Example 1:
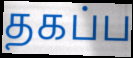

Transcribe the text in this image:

தகப்ப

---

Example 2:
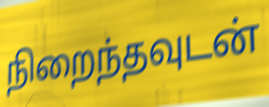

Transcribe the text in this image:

நிறைந்தவுடன்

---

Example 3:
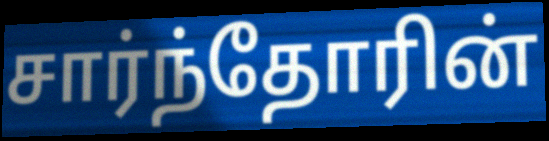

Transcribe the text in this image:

சார்ந்தோரின்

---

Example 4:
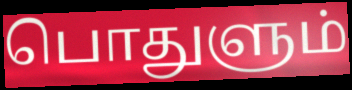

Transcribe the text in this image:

பொதுளும்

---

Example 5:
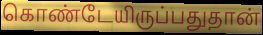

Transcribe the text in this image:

கொண்டேயிருப்பதுதான்